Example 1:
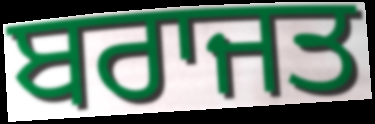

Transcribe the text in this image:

ਬਰਾਜਤ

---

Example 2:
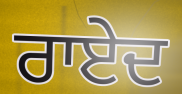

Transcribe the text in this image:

ਰਾਏਦ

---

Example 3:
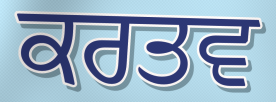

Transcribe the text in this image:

ਕਰਤਵ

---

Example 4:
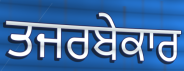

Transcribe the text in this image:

ਤਜਰਬੇਕਾਰ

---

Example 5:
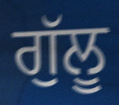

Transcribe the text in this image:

ਗੁੱਲੂ